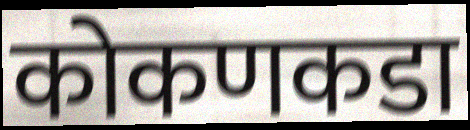
कोकणकडा